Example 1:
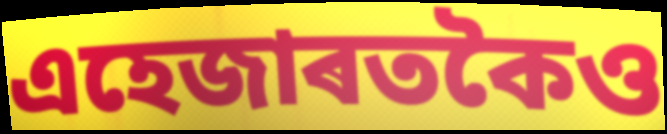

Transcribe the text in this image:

এহেজাৰতকৈও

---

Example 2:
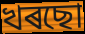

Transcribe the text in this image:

খৰছো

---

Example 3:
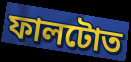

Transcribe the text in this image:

ফালটোত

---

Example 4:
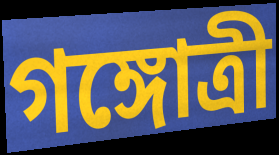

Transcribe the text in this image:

গঙ্গোত্ৰী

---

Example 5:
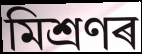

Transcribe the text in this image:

মিশ্ৰণৰ